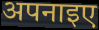
अपनाइए